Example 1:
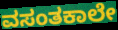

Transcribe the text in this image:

ವಸಂತಕಾಲೇ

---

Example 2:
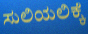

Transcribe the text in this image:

ಸುಲಿಯಲಿಕ್ಕೆ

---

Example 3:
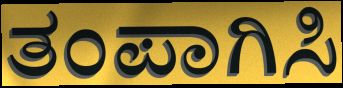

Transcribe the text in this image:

ತಂಪಾಗಿಸಿ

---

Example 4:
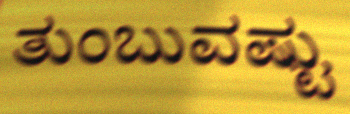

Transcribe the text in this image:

ತುಂಬುವಷ್ಟು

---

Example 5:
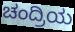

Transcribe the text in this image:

ಚಂದ್ರಿಯ